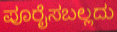
ಪೂರೈಸಬಲ್ಲದು